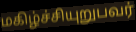
மகிழ்ச்சியுறுபவர்